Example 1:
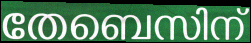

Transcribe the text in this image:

തേബെസിന്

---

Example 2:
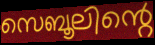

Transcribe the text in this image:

സെബൂലിന്റെ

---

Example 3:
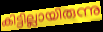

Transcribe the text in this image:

കിട്ടില്ലായിരുന്നു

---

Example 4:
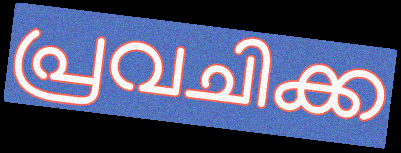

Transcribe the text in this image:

പ്രവചിക്ക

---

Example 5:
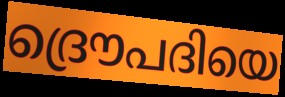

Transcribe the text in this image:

ദ്രൌപദിയെ